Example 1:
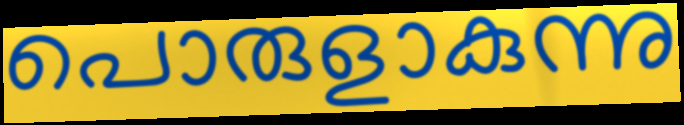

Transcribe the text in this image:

പൊരുളാകുന്നു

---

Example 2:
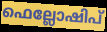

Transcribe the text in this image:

ഫെല്ലോഷിപ്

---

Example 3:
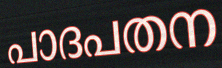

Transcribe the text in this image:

പാദപതന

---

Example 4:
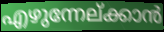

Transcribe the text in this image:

എഴുന്നേല്ക്കാൻ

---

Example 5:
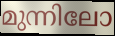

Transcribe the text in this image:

മുന്നിലോ